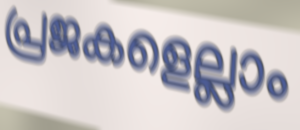
പ്രജകളെല്ലാം